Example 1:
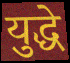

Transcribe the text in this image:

युद्धे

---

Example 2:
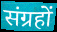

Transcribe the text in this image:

संग्रहों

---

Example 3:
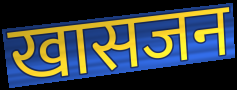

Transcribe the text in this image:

खासजन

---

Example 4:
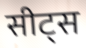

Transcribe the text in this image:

सीट्स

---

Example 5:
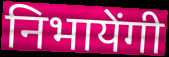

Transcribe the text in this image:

निभायेंगी